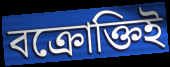
বক্রোক্তিই